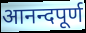
आनन्दपूर्ण